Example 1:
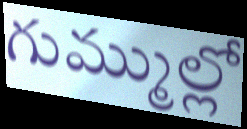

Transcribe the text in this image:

గుమ్ముల్లో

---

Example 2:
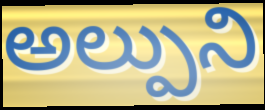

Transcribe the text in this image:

అల్పుని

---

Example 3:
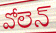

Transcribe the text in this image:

వోలెన్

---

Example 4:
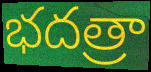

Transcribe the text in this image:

భదత్రా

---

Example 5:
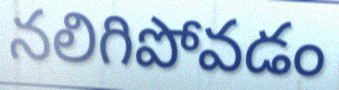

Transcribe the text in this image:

నలిగిపోవడం